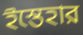
ইস্তেহার